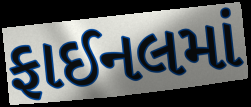
ફાઈનલમાં